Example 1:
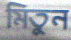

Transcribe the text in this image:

মিতুন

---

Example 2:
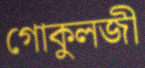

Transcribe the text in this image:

গোকুলজী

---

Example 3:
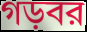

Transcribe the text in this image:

গড়বর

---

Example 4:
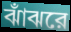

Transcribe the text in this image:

ঝাঁঝরে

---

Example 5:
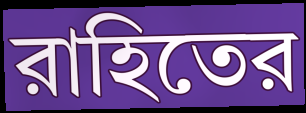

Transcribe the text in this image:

রাহিতের